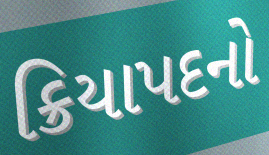
ક્રિયાપદનો